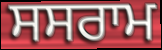
ਸਸਰਾਮ